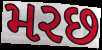
મરછ